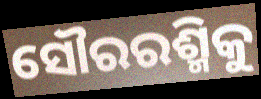
ସୌରରଶ୍ମିକୁ